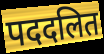
पददलित